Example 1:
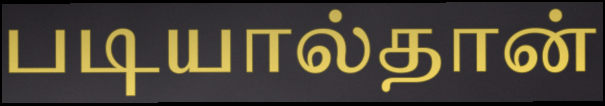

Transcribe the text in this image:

படியால்தான்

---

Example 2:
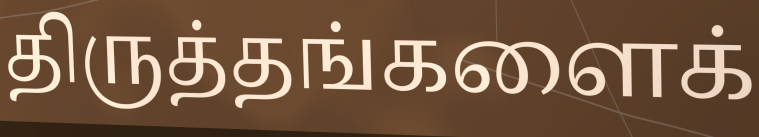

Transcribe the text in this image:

திருத்தங்களைக்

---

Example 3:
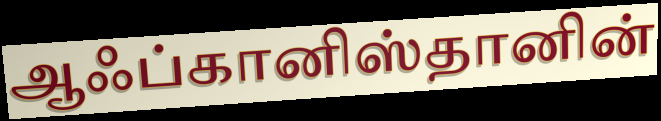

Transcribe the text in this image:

ஆஃப்கானிஸ்தானின்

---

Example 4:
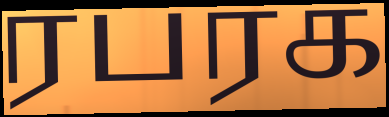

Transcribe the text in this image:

ரபரக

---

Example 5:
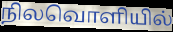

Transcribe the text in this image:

நிலவொளியில்